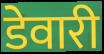
डेवारी